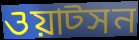
ওয়াট্সন